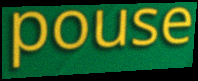
pouse